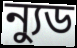
ন্যুড